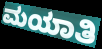
ಮಯಾತಿ